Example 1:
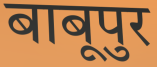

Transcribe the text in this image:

बाबूपुर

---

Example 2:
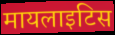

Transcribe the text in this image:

मायलाइटिस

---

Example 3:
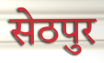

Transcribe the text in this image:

सेठपुर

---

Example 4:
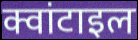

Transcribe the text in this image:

क्वांटाइल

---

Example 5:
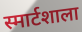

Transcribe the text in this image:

स्मार्टशाला